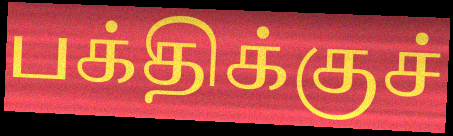
பக்திக்குச்